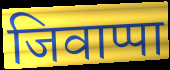
जिवाप्पा